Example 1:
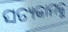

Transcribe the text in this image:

ସତ୍ୟକାମକୁ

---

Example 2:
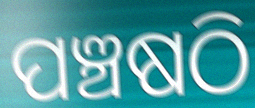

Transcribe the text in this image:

ପଞ୍ଚଷଠି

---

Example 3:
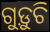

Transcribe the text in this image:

ଗୁଡ଼ୁଚି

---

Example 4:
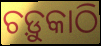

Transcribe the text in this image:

ଚଡ଼ୁକାଠି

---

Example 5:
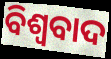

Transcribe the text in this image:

ବିଶ୍ୱବାଦ